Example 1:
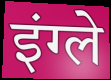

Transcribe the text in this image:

इंग्ले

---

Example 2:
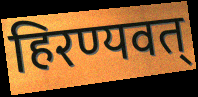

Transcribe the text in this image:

हिरण्यवत्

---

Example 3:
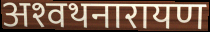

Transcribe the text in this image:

अश्वथनारायण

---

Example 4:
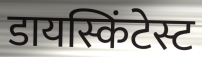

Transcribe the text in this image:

डायस्किंटेस्ट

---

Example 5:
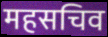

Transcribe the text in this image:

महसचिव